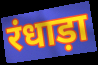
रंधाड़ा